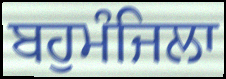
ਬਹੁਮੰਜਿਲਾ